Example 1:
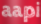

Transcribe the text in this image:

aapi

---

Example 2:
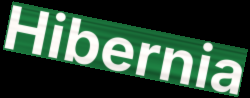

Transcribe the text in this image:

Hibernia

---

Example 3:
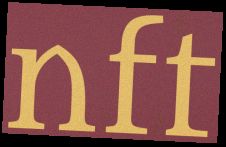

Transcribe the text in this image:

nft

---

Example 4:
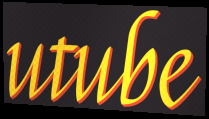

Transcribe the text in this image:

utube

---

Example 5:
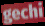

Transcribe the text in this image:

gechi